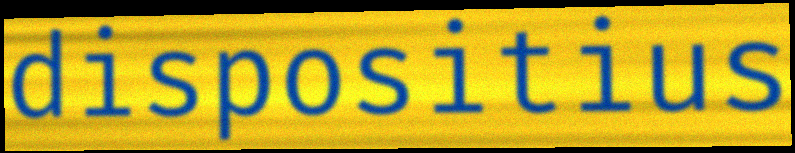
dispositius